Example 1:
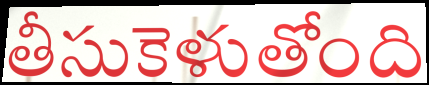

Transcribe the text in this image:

తీసుకెళుతోంది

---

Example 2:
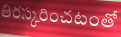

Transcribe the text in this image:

తిరస్కరించటంతో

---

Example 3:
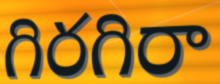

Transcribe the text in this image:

గిరగిరా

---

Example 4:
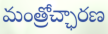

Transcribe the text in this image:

మంత్రోచ్ఛారణ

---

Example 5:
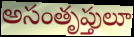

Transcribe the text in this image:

అసంతృప్తులూ